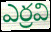
ఎర్రవి